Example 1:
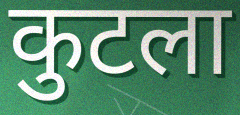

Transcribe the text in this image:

कुटला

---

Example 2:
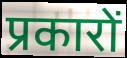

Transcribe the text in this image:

प्रकारों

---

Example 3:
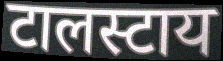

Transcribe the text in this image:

टालस्टाय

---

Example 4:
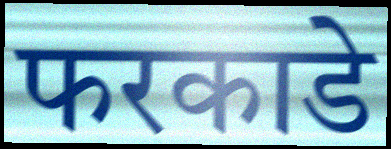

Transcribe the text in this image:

फरकाडे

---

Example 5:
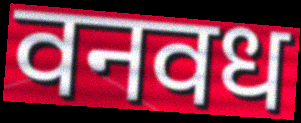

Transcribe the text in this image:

वनवध